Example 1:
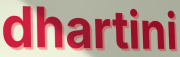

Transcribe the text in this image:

dhartini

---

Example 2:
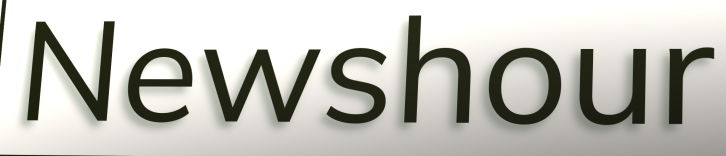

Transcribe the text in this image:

Newshour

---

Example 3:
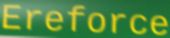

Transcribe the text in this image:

Ereforce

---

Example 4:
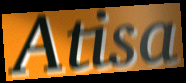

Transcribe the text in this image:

Atisa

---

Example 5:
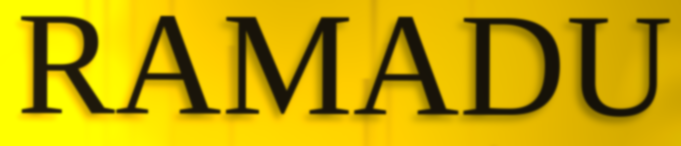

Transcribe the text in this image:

RAMADU